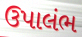
ઉપાલંભ